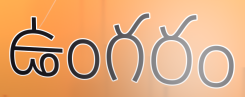
ఉంగరం